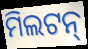
ମିଲଟନ୍